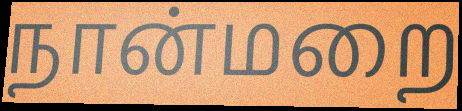
நான்மறை